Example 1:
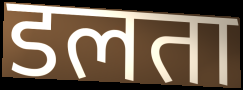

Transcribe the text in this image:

डलता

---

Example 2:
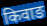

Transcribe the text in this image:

किवाङ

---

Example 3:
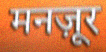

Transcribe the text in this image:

मनज़ूर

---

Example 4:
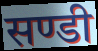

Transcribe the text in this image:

सण्डी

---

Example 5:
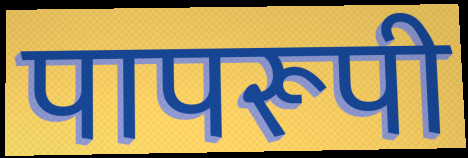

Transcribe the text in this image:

पापरूपी